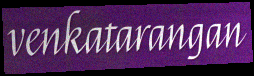
venkatarangan